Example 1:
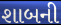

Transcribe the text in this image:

શાબની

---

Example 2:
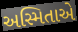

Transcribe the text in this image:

અસ્મિતાએ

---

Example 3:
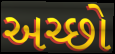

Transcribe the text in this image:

અચ્છો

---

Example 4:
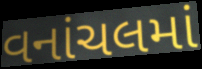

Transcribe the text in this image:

વનાંચલમાં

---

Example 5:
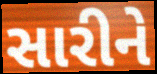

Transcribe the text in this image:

સારીને